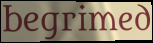
begrimed